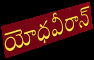
యోధవీరాన్